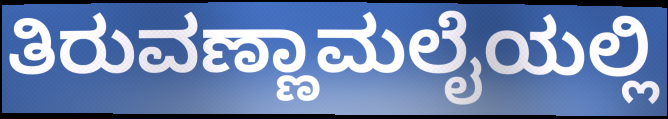
ತಿರುವಣ್ಣಾಮಲೈಯಲ್ಲಿ